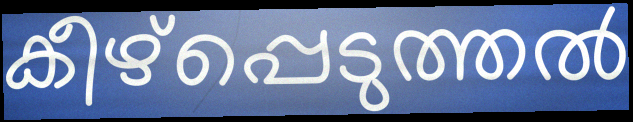
കീഴ്പ്പെടുത്തൽ